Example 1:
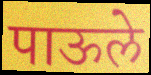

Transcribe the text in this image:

पाऊले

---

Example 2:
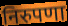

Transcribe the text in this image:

निरुपणा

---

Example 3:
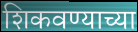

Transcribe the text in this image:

शिकवण्याच्या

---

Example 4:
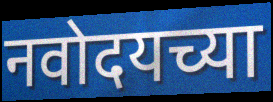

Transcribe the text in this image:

नवोदयच्या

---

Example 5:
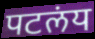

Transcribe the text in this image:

पटलंय